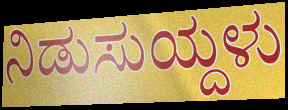
ನಿಡುಸುಯ್ದಳು